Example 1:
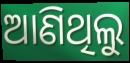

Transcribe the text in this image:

ଆଣିଥିଲୁ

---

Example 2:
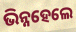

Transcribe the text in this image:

ଭିନ୍ନହେଲେ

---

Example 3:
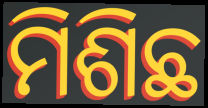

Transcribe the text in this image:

ମିଶିଛ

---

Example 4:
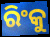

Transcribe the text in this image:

ରିଂକୁ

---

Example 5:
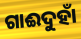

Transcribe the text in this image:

ଗାଈଦୁହାଁ